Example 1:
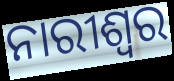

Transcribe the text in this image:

ନାରୀଶ୍ବର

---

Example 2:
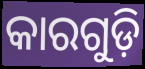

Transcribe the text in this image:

କାରଗୁଡ଼ି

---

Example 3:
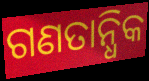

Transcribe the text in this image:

ଗଣତାନ୍ଧିକ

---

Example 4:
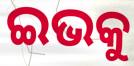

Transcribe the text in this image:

ଇଭକୁ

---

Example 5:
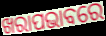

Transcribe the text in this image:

ଖରାପଭାବରେ